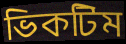
ভিকটিম